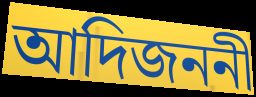
আদিজননী